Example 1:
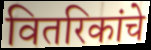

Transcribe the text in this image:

वितरिकांचे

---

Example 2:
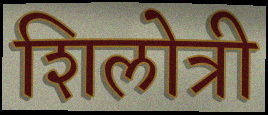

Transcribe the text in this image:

शिलोत्री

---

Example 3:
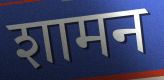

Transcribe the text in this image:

शामन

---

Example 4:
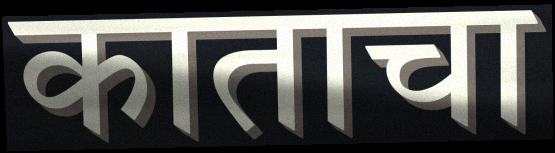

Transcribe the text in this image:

काताचा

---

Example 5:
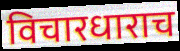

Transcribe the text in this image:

विचारधाराच